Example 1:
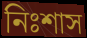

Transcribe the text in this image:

নিঃশাস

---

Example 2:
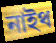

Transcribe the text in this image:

নাইথ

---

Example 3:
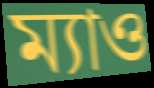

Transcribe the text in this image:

ম্যাও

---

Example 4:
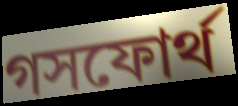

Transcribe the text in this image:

গসফোর্থ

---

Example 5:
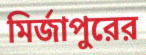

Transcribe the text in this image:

মির্জাপুরের